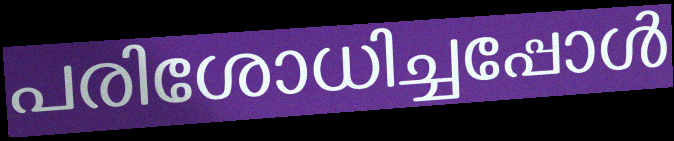
പരിശോധിച്ചപ്പോൾ